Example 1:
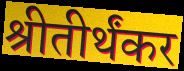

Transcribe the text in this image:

श्रीतीर्थंकर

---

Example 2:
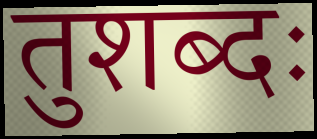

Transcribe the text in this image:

तुशब्दः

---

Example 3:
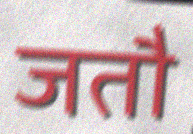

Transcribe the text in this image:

जतौ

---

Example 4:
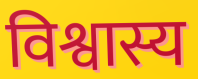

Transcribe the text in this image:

विश्वास्य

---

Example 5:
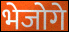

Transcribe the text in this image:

भेजोगे